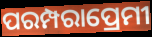
ପରମ୍ପରାପ୍ରେମୀ